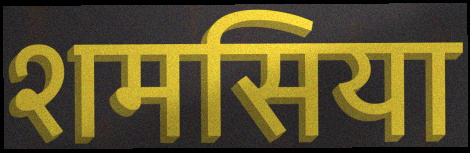
शमसिया